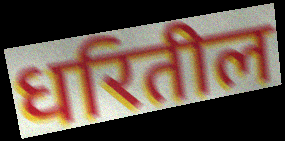
धरितील